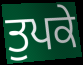
ਤੁਪਕੇ